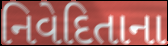
નિવેદિતાના